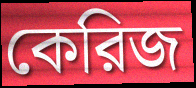
কেরিজ